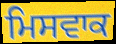
ਮਿਸਵਾਕ